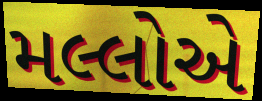
મલ્લોએ